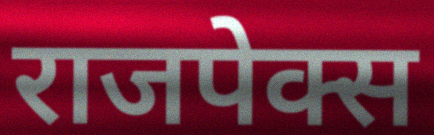
राजपेक्स